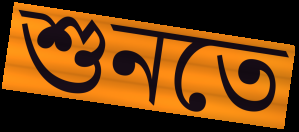
শুনতে